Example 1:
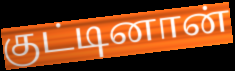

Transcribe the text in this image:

குட்டினான்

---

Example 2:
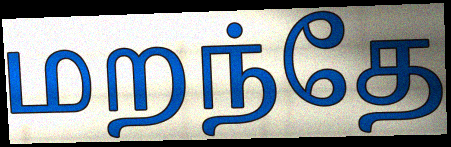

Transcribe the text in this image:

மறந்தே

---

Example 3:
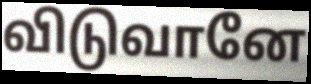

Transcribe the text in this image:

விடுவானே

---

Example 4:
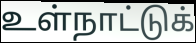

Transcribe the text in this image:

உள்நாட்டுக்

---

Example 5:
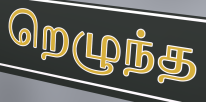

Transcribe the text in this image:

றெழுந்த